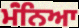
ਮੰਂਨਿਆ